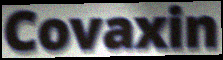
Covaxin